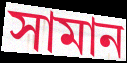
সামান